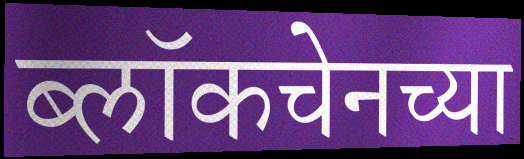
ब्लॉकचेनच्या